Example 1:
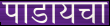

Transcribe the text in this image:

पाडायचा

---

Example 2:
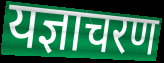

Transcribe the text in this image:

यज्ञाचरण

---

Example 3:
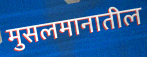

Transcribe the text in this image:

मुसलमानातील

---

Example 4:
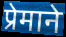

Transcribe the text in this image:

प्रेमाने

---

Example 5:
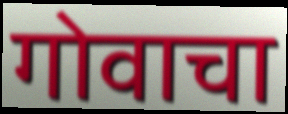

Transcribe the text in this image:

गोवाचा